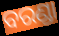
ବରଣ୍ଡା